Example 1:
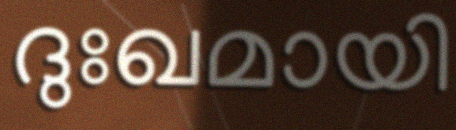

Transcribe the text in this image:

ദുഃഖമായി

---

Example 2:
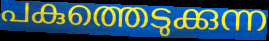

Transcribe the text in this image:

പകുത്തെടുക്കുന്ന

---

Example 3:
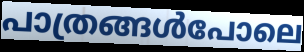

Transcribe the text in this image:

പാത്രങ്ങൾപോലെ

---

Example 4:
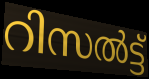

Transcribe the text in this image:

റിസൽട്ട്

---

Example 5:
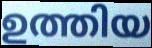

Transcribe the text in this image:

ഉത്തിയ